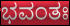
ಭವಂತಃ